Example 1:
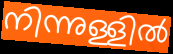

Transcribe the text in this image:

നിന്നുള്ളിൽ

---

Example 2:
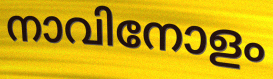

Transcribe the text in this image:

നാവിനോളം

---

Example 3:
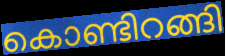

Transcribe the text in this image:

കൊണ്ടിറങ്ങി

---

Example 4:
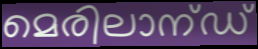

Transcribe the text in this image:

മെരിലാന്ഡ്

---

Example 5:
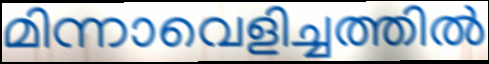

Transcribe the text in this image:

മിന്നാവെളിച്ചത്തിൽ